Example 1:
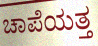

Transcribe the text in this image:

ಚಾಪೆಯತ್ತ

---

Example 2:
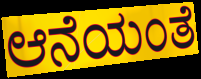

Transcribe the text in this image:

ಆನೆಯಂತೆ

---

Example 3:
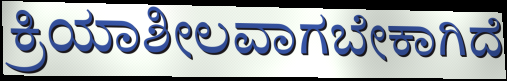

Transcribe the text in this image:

ಕ್ರಿಯಾಶೀಲವಾಗಬೇಕಾಗಿದೆ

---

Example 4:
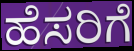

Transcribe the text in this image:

ಹೆಸರಿಗೆ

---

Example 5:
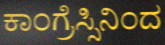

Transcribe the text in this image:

ಕಾಂಗ್ರೆಸ್ಸಿನಿಂದ